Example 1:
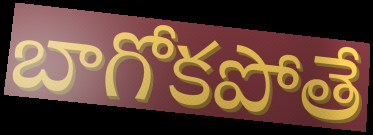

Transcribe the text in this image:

బాగోకపోతే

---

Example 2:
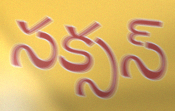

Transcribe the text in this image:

సక్సస్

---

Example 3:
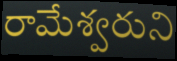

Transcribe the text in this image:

రామేశ్వరుని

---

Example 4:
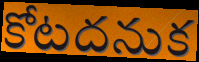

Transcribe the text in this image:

కోటదనుక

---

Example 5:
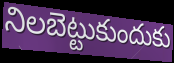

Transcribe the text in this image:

నిలబెట్టుకుందుకు